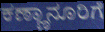
ಕಣ್ಣಾನೂರಿಗೆ